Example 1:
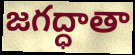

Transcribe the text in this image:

జగద్ధాతా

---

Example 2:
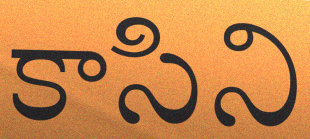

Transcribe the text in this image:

కాసిని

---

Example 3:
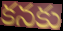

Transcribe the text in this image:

కనకు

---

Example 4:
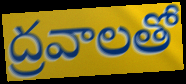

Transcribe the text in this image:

ద్రవాలతో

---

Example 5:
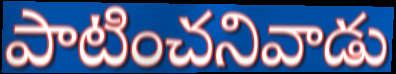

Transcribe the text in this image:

పాటించనివాడు